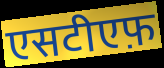
एसटीएफ़